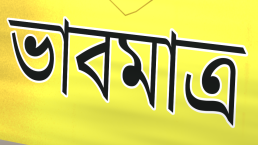
ভাবমাত্র